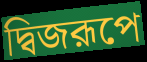
দ্বিজরূপে